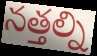
నత్తల్ని